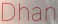
Dhan